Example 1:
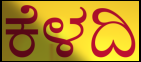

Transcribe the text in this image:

ಕೆಳದಿ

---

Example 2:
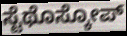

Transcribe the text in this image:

ಸ್ಟೆಥೊಸ್ಕೋಪ್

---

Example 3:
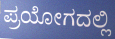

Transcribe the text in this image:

ಪ್ರಯೋಗದಲ್ಲಿ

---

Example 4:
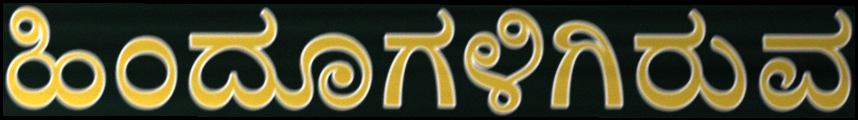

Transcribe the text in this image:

ಹಿಂದೂಗಳಿಗಿರುವ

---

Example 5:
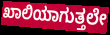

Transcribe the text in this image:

ಖಾಲಿಯಾಗುತ್ತಲೇ